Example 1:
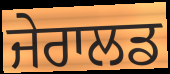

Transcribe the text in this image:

ਜੇਰਾਲਡ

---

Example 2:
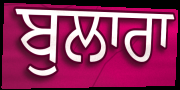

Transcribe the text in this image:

ਬੁਲਾਰਾ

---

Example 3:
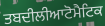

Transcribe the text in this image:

ਤਬਦੀਲੀਆਟੋਮੈਟਿਕ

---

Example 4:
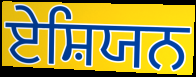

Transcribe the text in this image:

ਏਸ਼ਿਯਨ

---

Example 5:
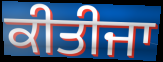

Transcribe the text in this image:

ਕੀਤੀਜਾ